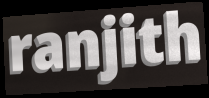
ranjith